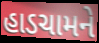
હાડચામને